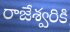
రాజేశ్వరికి